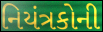
નિયંત્રકોની